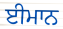
ਈਮਾਨ